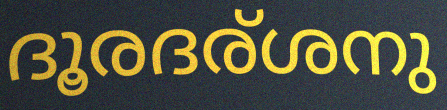
ദൂരദര്ശനു